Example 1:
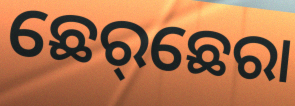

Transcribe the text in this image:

ଛେର୍‌ଛେରା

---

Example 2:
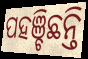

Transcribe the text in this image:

ପହଞ୍ଚିଛନ୍ତି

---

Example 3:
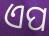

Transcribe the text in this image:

ଏପ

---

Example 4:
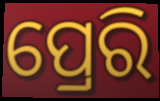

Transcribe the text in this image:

ପ୍ରେରି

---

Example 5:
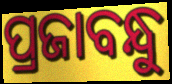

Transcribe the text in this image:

ପ୍ରଜାବନ୍ଧୁ